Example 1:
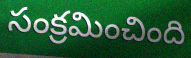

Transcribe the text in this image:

సంక్రమించింది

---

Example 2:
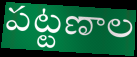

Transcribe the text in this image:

పట్టణాల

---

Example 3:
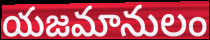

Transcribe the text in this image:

యజమానులం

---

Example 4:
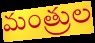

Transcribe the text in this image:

మంత్రుల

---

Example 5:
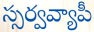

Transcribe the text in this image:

స్సర్వవ్యాపీ